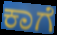
ಕಾಗೆ